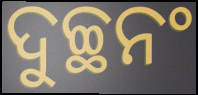
ଦୁଚ୍ଛନଂ